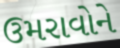
ઉમરાવોને